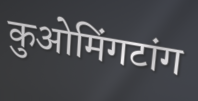
कुओमिंगटांग